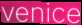
venice